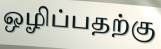
ஒழிப்பதற்கு